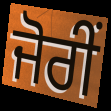
ਜੋਰੀਂ